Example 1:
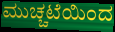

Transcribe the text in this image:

ಮುಚ್ಚಟೆಯಿಂದ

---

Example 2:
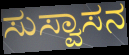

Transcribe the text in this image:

ಸುಸ್ವಾಸನ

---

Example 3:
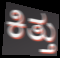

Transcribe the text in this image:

ಕಿತ್ತು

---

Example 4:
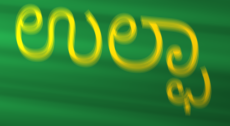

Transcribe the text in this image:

ಉಲ್ಫಾ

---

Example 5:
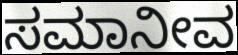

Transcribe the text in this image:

ಸಮಾನೀವ